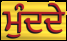
ਮੁੰਦਦੇ